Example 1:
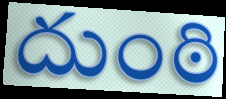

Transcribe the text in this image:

దుంఠి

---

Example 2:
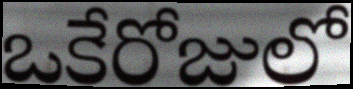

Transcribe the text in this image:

ఒకేరోజులో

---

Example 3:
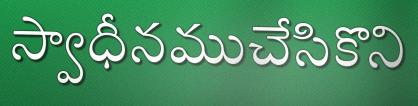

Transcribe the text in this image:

స్వాధీనముచేసికొని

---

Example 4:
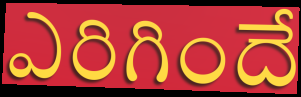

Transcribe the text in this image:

ఎరిగిందే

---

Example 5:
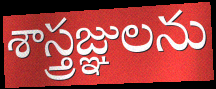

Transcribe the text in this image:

శాస్త్రజ్ఞులను